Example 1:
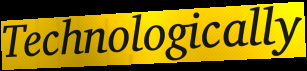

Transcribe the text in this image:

Technologically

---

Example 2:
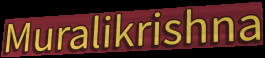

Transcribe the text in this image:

Muralikrishna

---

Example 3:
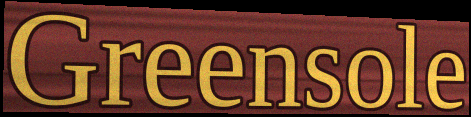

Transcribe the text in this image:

Greensole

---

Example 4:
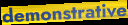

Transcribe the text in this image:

demonstrative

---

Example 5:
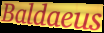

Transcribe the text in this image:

Baldaeus